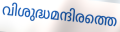
വിശുദ്ധമന്ദിരത്തെ